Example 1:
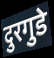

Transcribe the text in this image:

दुरगुडे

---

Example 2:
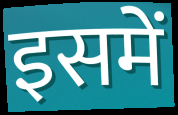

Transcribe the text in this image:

इसमें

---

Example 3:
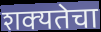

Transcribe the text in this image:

शक्‍यतेचा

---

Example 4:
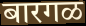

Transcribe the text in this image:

बारगळ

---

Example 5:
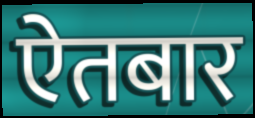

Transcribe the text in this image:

ऐतबार